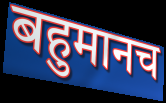
बहुमानच